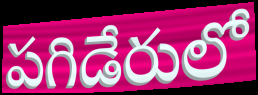
పగిడేరులో